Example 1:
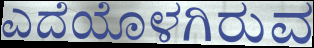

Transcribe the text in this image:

ಎದೆಯೊಳಗಿರುವ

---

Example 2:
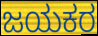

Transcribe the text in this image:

ಜಯಕರ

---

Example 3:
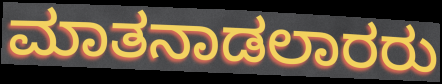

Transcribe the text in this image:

ಮಾತನಾಡಲಾರರು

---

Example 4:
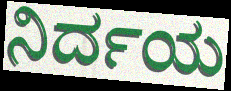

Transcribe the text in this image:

ನಿರ್ದಯ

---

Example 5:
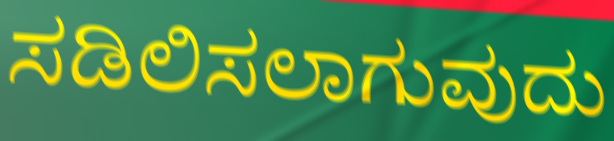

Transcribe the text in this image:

ಸಡಿಲಿಸಲಾಗುವುದು